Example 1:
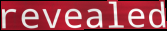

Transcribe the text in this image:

revealed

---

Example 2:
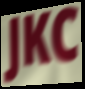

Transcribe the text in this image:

JKC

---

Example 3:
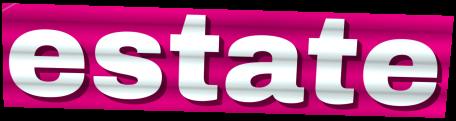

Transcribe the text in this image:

estate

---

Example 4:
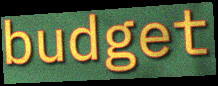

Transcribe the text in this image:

budget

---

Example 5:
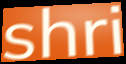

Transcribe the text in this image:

shri